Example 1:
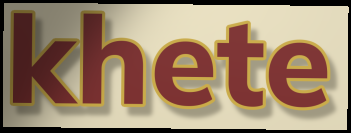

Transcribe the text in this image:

khete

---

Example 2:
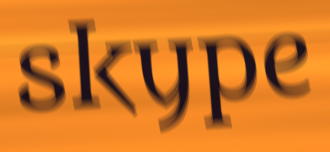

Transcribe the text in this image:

skype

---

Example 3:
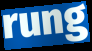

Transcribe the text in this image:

rung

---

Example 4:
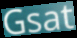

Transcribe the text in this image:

Gsat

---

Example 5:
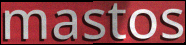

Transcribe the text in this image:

mastos